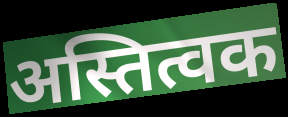
अस्तित्वक